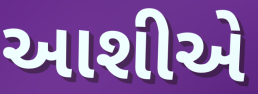
આશીએ